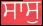
ਸਾਸੁ